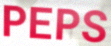
PEPS